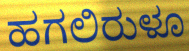
ಹಗಲಿರುಳೂ